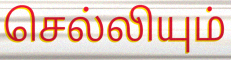
செல்லியும்